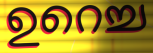
ഉറെച്ച